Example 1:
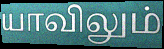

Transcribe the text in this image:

யாவிலும்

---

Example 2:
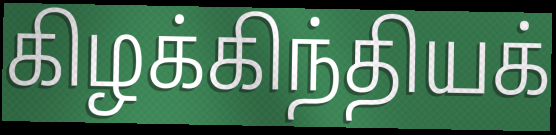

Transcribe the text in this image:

கிழக்கிந்தியக்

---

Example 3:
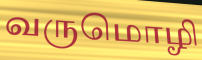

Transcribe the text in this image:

வருமொழி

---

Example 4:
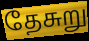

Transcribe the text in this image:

தேசுறு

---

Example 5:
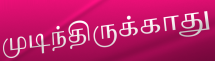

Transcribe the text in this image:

முடிந்திருக்காது